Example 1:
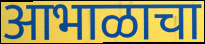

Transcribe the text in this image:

आभाळाचा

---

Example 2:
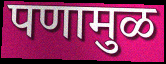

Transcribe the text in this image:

पणामुळ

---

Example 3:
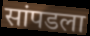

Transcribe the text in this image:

सांपडला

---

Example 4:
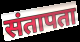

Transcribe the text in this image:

संतापता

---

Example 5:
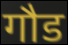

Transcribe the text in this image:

गौड